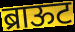
ब्राऊट